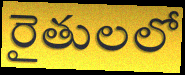
రైతులలో